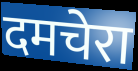
दमचेरा